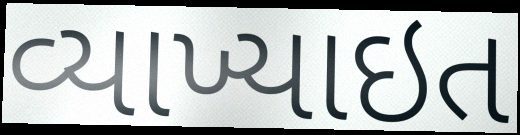
વ્યાખ્યાઇત